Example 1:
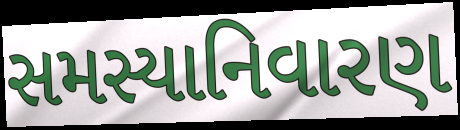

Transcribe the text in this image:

સમસ્યાનિવારણ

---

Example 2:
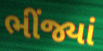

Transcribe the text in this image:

ભીંજ્યાં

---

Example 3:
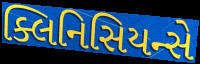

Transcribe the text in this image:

ક્લિનિસિયન્સે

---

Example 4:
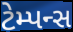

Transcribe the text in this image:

ટેમ્પન્સ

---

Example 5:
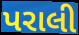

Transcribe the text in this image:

પરાલી